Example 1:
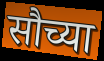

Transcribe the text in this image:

सौच्या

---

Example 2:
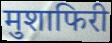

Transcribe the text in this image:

मुशाफिरी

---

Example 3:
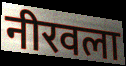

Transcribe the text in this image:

नीरवला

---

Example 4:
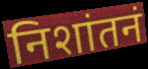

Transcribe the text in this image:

निशांतनं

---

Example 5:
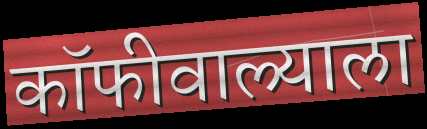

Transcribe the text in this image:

कॉफीवाल्याला